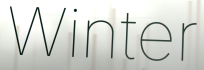
Winter